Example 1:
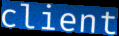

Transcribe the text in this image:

client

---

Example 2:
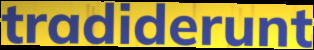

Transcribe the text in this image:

tradiderunt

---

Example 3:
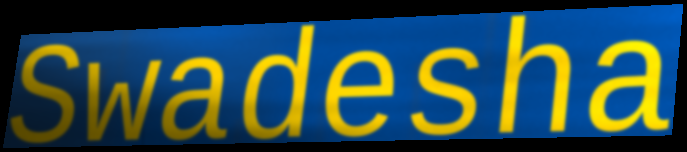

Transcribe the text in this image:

Swadesha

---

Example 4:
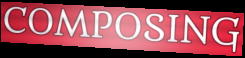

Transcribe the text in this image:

COMPOSING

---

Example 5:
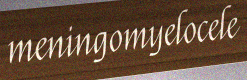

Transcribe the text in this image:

meningomyelocele